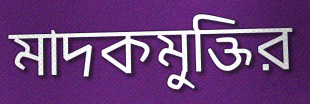
মাদকমুক্তির